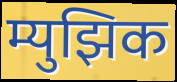
म्युझिक